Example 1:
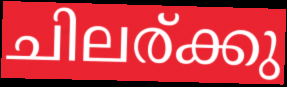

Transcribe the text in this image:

ചിലര്ക്കു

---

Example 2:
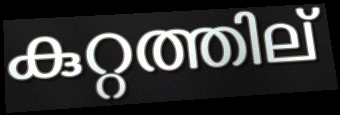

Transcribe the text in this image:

കുറ്റത്തില്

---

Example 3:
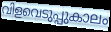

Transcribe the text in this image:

വിളവെടുപ്പുകാലം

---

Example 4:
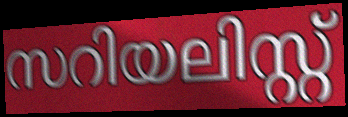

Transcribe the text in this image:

സറിയലിസ്റ്റ്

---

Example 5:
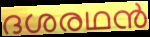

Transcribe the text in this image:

ദശരഥൻ